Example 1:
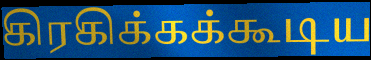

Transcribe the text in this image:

கிரகிக்கக்கூடிய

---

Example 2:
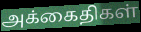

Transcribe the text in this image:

அக்கைதிகள்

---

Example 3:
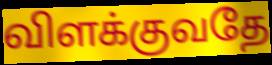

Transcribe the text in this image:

விளக்குவதே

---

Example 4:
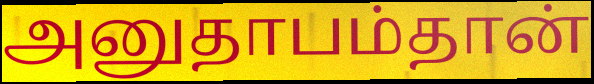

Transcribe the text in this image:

அனுதாபம்தான்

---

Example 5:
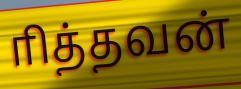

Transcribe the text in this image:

ரித்தவன்